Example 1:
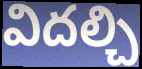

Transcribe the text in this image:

విదల్చి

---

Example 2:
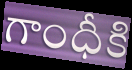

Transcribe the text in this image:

గాంధీకి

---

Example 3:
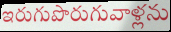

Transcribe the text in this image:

ఇరుగుపొరుగువాళ్లను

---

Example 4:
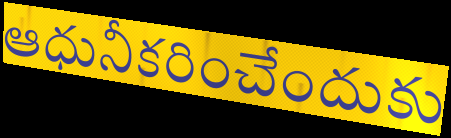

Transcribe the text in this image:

ఆధునీకరించేందుకు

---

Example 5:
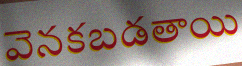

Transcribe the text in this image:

వెనకబడతాయి